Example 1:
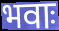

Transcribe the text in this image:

भवाः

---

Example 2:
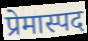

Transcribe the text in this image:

प्रेमास्पद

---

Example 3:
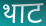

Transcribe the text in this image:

थाट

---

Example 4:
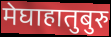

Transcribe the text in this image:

मेघाहातुबुरु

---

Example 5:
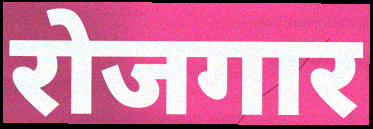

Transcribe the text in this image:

रोजगार